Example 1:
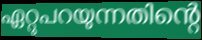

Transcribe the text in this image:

ഏറ്റുപറയുന്നതിന്റെ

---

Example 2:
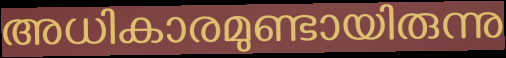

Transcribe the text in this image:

അധികാരമുണ്ടായിരുന്നു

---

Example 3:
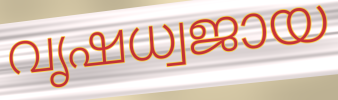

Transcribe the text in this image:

വൃഷധ്വജായ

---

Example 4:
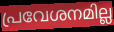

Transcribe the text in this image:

പ്രവേശനമില്ല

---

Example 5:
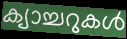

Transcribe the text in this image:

ക്യാച്ചറുകൾ